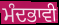
ਮੰਦਭਾਵੀ